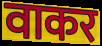
वाकर